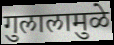
गुलालामुळे